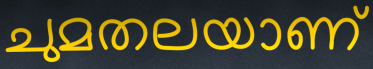
ചുമതലയാണ്